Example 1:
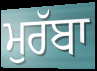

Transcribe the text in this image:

ਮੁਰੱਬਾ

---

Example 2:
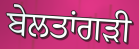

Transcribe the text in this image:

ਬੇਲਤਾਂਗੜੀ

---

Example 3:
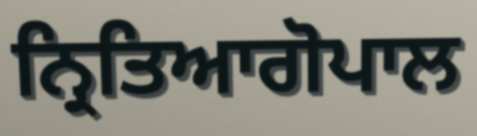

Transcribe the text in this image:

ਨ੍ਰਿਤਿਆਗੋਪਾਲ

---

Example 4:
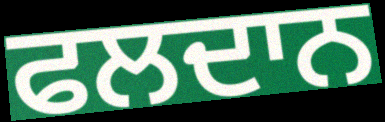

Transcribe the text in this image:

ਫਲਦਾਨ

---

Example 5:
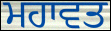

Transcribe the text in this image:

ਮਹਾਵਤ